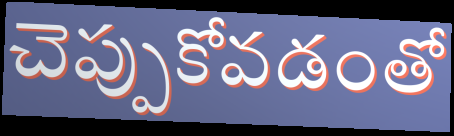
చెప్పుకోవడంతో